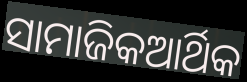
ସାମାଜିକଆର୍ଥିକ